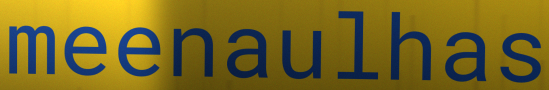
meenaulhas